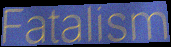
Fatalism